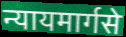
न्यायमार्गसे